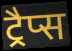
ट्रैप्स